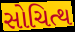
સોચિત્થ